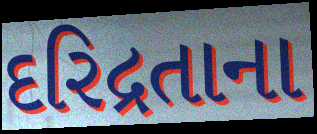
દરિદ્રતાના